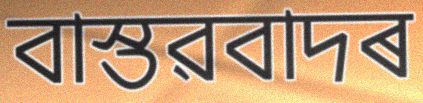
বাস্তৱবাদৰ